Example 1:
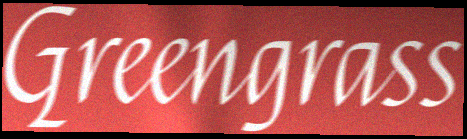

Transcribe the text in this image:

Greengrass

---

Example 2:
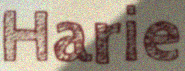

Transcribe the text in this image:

Harie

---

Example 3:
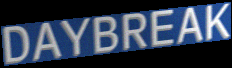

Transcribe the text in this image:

DAYBREAK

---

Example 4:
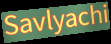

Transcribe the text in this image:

Savlyachi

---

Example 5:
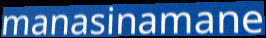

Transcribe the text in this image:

manasinamane